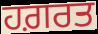
ਹਗ਼ਰਤ